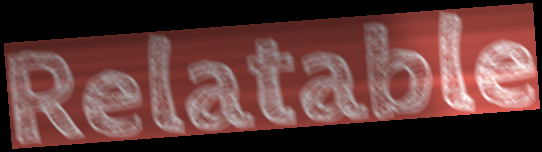
Relatable